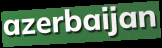
azerbaijan